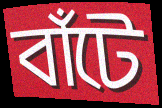
বাঁটে